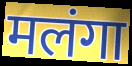
मलंगा